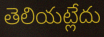
తెలియట్లేదు